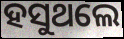
ହସୁଥଲେ